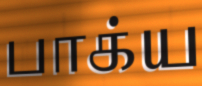
பாக்ய